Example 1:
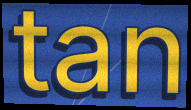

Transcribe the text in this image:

tan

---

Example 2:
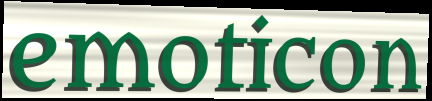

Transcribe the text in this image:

emoticon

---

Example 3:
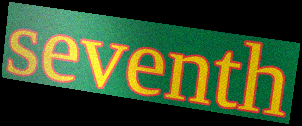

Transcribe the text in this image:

seventh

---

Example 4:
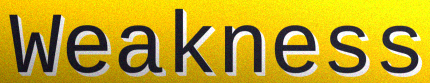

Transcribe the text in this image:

Weakness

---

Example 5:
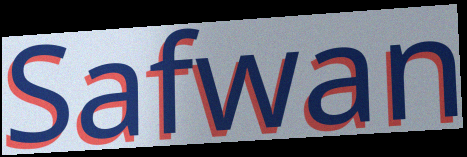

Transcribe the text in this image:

Safwan